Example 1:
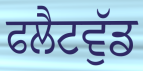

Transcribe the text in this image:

ਫਲੈਟਵੁੱਡ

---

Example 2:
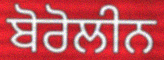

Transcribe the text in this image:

ਬੋਰੋਲੀਨ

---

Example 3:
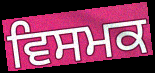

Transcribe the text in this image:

ਵਿਸਮਕ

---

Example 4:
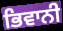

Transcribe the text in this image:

ਭਿਵਾਨੀ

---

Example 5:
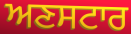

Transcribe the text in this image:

ਅਣਸਟਾਰ